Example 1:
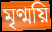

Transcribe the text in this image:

মৃণ্ময়ি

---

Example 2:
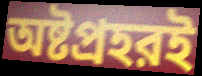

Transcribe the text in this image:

অষ্টপ্রহরই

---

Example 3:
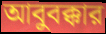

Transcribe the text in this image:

আবুবক্কার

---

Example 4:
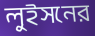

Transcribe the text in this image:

লুইসনের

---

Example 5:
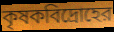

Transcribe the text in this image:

কৃষকবিদ্রোহের